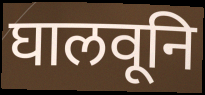
घालवूनि